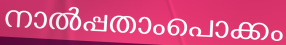
നാൽപ്പതാംപൊക്കം